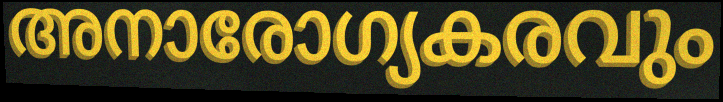
അനാരോഗ്യകരവും